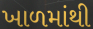
ખાળમાંથી